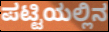
ಪಟ್ಟಿಯಲ್ಲಿನ